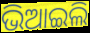
ଭିଆଇଲି